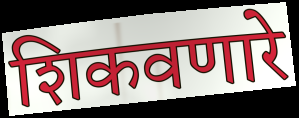
शिकवणारे